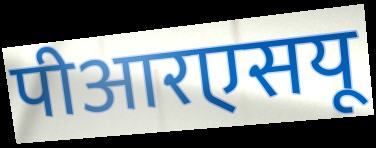
पीआरएसयू